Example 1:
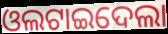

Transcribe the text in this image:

ଓଲଟାଇଦେଲା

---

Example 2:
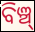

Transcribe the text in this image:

ବିଞ୍ଚ୍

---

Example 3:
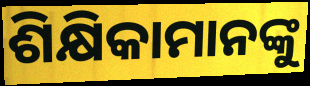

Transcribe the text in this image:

ଶିକ୍ଷିକାମାନଙ୍କୁ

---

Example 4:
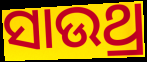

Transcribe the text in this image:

ସାଉଥ୍ର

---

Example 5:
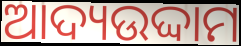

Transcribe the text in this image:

ଆଦ୍ୟଉଦ୍ଦାମ